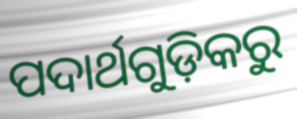
ପଦାର୍ଥଗୁଡ଼ିକରୁ